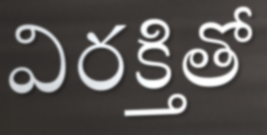
విరక్తితో